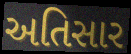
અતિસાર